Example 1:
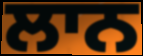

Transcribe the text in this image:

ਲਾਨ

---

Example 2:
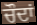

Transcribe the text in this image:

ਚੌਦਾਂ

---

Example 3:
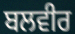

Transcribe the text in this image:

ਬਲਵੀਰ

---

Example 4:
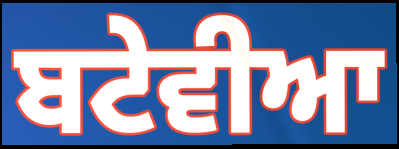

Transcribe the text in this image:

ਬਟੇਵੀਆ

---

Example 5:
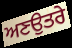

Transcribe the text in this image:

ਅਣਉਤਰੇ